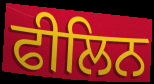
ਫੀਲਿਨ